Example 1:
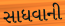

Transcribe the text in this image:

સાધવાની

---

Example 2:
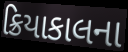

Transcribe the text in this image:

ક્રિયાકાલના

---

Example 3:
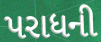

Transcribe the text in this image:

પરાધની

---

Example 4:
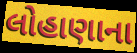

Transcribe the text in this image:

લોહાણાના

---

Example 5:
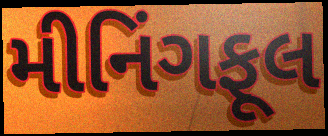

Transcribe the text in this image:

મીનિંગફૂલ